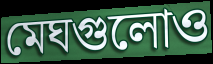
মেঘগুলোও